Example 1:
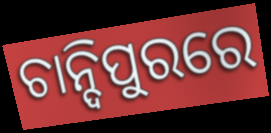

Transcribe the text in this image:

ଚାନ୍ଦିପୁରରେ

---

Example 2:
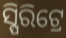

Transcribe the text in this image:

ସ୍ପିରିଟ୍ରେ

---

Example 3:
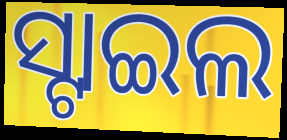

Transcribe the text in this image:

ସ୍ଟାଇଲ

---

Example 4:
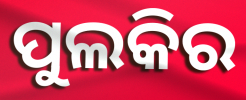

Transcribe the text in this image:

ପୁଲକିର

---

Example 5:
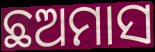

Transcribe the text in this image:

ଛଅମାସ